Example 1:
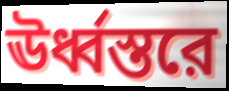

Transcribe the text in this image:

ঊর্ধ্বস্তরে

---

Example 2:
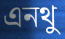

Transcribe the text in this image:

এনথু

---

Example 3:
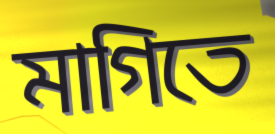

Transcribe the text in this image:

মাগিতে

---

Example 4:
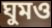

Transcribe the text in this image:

ঘুমও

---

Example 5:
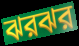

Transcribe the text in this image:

ঝরঝর